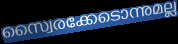
സ്വൈരക്കേടൊന്നുമല്ല